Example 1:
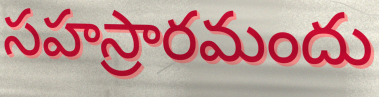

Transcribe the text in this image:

సహస్రారమందు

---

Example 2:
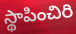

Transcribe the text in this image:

స్థాపించిరి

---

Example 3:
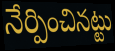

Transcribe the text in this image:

నేర్పించినట్టు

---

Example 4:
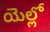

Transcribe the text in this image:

యెల్లో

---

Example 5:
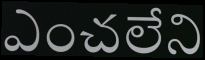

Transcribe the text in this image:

ఎంచలేని